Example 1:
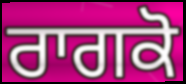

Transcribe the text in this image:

ਰਾਗਕੋ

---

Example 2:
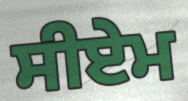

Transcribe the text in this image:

ਸੀਏਮ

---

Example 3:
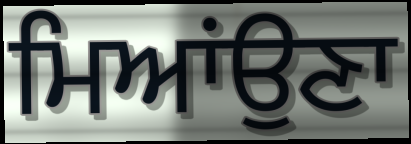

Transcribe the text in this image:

ਮਿਆਂਉਣਾ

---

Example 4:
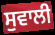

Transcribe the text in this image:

ਸੁਵਾਲੀ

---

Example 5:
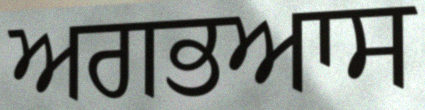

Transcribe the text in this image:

ਅਗਭਆਸ